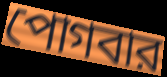
পোগবার